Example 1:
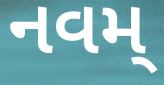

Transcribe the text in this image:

નવમ્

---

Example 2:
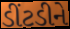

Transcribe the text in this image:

ડીંટડીને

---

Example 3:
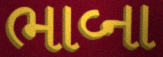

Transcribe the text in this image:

ભાવ્ના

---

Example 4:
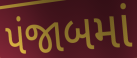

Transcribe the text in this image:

પંજાબમાં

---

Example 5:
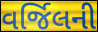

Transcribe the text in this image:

વર્જિલની